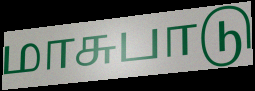
மாசுபாடு